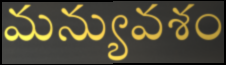
మన్యువశం